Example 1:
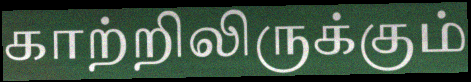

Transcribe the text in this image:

காற்றிலிருக்கும்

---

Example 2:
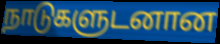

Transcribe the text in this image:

நாடுகளுடனான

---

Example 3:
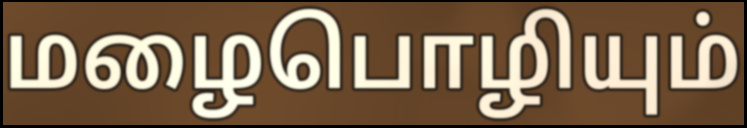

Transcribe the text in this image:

மழைபொழியும்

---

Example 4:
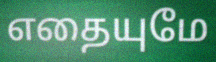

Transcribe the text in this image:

எதையுமே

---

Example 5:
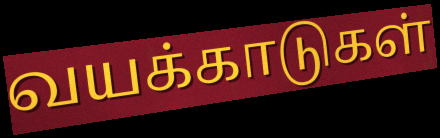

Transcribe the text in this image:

வயக்காடுகள்